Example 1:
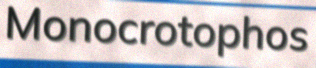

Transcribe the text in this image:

Monocrotophos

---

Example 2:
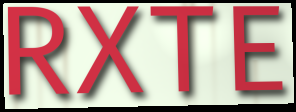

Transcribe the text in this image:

RXTE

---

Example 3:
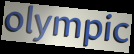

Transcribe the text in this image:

olympic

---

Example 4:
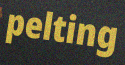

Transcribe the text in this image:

pelting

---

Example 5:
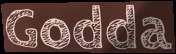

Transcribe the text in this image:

Godda